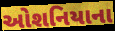
ઓશનિયાના